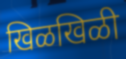
खिळखिळी